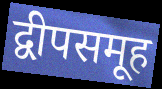
द्वीपसमूह